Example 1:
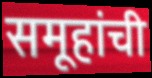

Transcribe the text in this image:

समूहांची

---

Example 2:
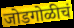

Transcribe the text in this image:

जोडगोळीचं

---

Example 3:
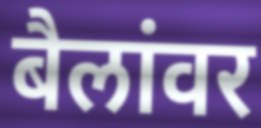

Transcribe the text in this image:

बैलांवर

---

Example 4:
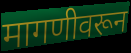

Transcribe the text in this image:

मागणीवरून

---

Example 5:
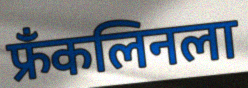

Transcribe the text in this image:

फ्रॅंकलिनला